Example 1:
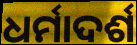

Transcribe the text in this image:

ଧର୍ମାଦର୍ଶ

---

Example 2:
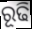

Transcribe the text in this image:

ରୂଢି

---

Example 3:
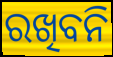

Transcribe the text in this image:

ରଖିବନି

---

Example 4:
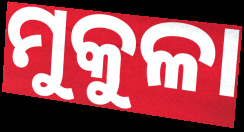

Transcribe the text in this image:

ମୁକୁଳା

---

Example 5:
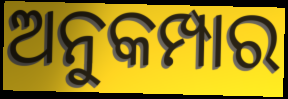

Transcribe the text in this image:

ଅନୁକମ୍ପାର